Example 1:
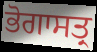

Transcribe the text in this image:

ਭੋਗਾਸਤ੍ਰ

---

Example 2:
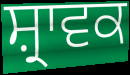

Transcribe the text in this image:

ਸ਼੍ਰਾਵਕ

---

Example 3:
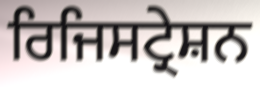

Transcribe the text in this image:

ਰਿਜਿਸਟ੍ਰੇਸ਼ਨ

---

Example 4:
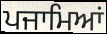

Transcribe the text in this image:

ਪਜਾਮਿਆਂ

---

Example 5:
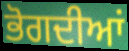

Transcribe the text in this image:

ਭੋਗਦੀਆਂ